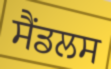
ਸੈਂਡਲਸ